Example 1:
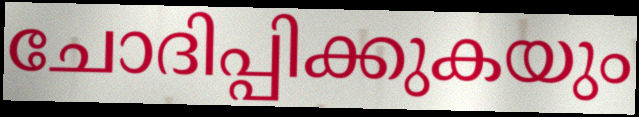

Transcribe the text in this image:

ചോദിപ്പിക്കുകയും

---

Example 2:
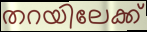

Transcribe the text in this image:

തറയിലേക്ക്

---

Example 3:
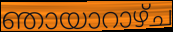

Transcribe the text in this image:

ഞായാറാഴ്ച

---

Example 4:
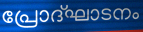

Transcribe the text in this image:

പ്രോദ്ഘാടനം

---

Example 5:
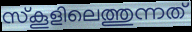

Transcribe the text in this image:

സ്കൂളിലെത്തുന്നത്